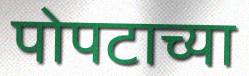
पोपटाच्या